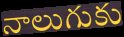
నాలుగుకు